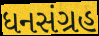
ધનસંગ્રહ